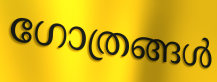
ഗോത്രങ്ങൾ